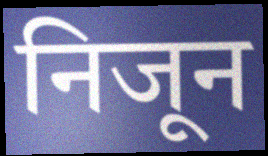
निजून